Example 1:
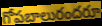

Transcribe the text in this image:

గోపబాలురందరూ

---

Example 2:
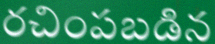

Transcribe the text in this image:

రచింపబడిన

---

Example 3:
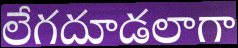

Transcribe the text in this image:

లేగదూడలాగా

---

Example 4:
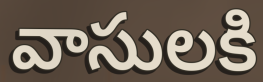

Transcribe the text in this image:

వాసులకి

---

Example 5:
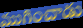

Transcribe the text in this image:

ముగించాడు